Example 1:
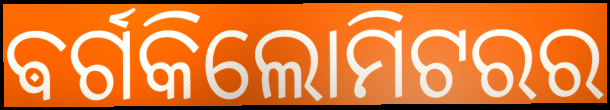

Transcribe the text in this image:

ଵର୍ଗକିଲୋମିଟରର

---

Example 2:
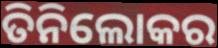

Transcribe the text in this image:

ତିନିଲୋକର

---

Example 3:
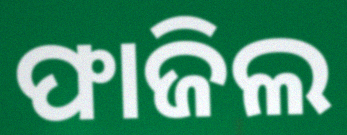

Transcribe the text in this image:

ଫାଜିଲ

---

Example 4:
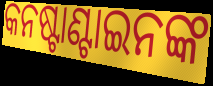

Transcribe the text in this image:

କନଷ୍ଟାଣ୍ଟାଇନଙ୍କ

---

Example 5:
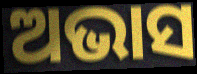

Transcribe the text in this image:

ଅଭାସ